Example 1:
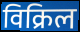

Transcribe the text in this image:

विक्रिल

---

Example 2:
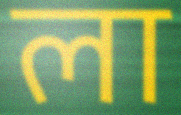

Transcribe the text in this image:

ला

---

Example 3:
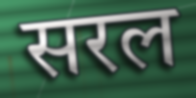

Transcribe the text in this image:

सरल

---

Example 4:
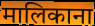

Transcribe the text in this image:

मालिकाना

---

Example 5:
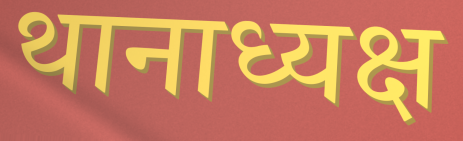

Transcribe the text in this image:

थानाध्यक्ष